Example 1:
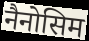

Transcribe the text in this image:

नैनोसिम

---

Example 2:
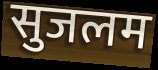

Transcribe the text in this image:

सुजलम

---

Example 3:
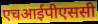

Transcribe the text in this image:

एचआईपीएससी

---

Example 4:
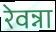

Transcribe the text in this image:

रेवन्ना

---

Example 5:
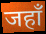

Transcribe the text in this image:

जहाँ